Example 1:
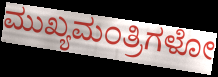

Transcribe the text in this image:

ಮುಖ್ಯಮಂತ್ರಿಗಳೋ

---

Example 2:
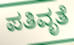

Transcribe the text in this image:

ಪತಿವೃತೆ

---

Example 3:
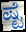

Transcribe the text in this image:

ಷ್ಟೆ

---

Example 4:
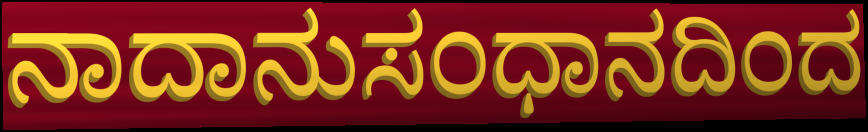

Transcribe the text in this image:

ನಾದಾನುಸಂಧಾನದಿಂದ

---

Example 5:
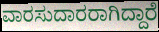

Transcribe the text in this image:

ವಾರಸುದಾರರಾಗಿದ್ದಾರೆ